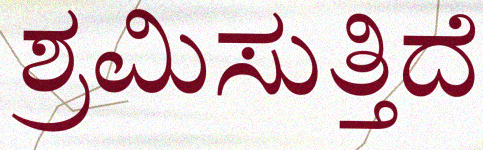
ಶ್ರಮಿಸುತ್ತಿದೆ